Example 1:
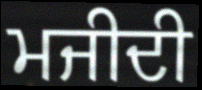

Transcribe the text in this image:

ਮਜੀਦੀ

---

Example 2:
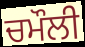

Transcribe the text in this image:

ਚਮੌਲੀ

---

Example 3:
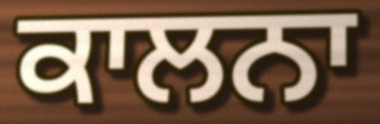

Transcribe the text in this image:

ਕਾਲਨਾ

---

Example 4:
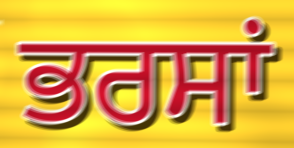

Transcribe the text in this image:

ਭਰਸਾਂ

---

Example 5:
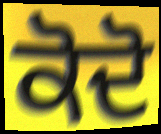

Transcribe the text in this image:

ਕੋਦੋ